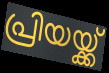
പ്രിയയ്ക്ക്